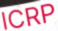
ICRP